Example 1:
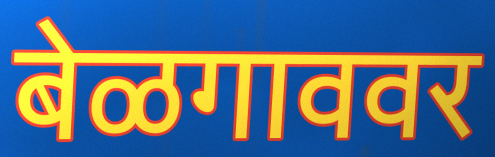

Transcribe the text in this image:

बेळगाववर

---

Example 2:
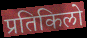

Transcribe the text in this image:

प्रतिकिलो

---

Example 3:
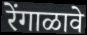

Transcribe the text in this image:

रेंगाळावे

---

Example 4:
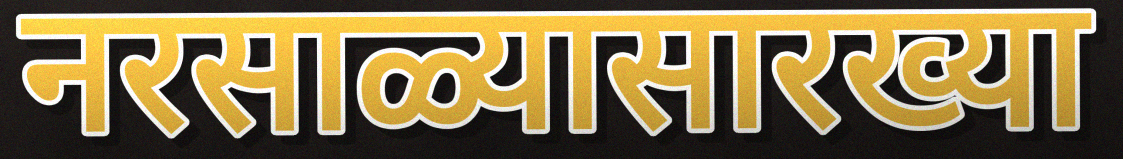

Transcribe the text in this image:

नरसाळ्यासारख्या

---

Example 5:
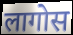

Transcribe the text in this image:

लागोस